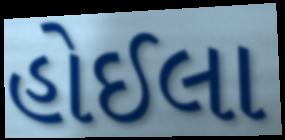
હોઈલા